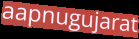
aapnugujarat